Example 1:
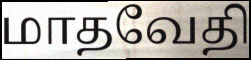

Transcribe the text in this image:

மாதவேதி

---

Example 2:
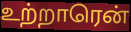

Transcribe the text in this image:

உற்றாரென்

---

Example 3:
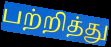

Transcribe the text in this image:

பற்றித்து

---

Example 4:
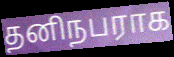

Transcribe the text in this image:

தனிநபராக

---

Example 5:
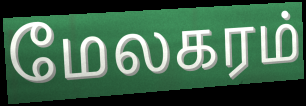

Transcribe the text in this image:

மேலகரம்